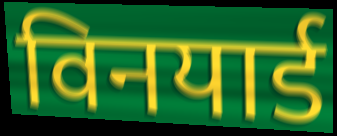
विनयार्ड